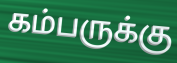
கம்பருக்கு